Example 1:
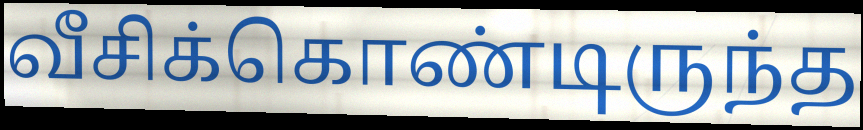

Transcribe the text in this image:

வீசிக்கொண்டிருந்த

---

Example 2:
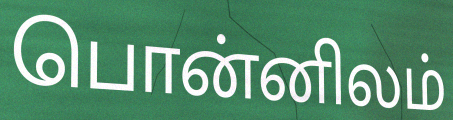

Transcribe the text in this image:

பொன்னிலம்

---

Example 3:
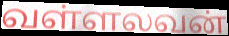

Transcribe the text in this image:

வள்ளலவன்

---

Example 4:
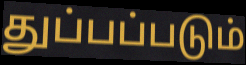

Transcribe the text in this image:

துப்பப்படும்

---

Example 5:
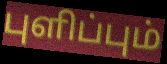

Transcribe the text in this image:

புளிப்பும்